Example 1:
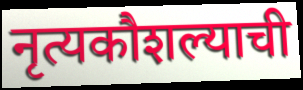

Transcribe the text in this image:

नृत्यकौशल्याची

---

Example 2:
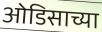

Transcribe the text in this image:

ओडिसाच्या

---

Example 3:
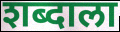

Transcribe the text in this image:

शब्दाला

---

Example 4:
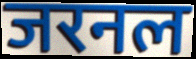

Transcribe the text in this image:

जरनल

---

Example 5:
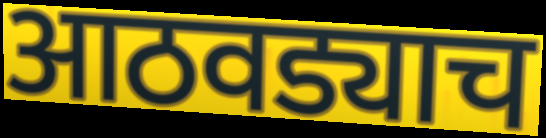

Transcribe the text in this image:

आठवड्याच